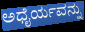
ಅಧೈರ್ಯವನ್ನು